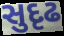
સુદૃઢ